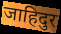
जाहिदुर